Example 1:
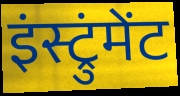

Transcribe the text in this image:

इंस्ट्रुंमेंट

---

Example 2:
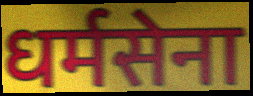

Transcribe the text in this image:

धर्मसेना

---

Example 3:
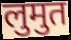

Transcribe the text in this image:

लुमुत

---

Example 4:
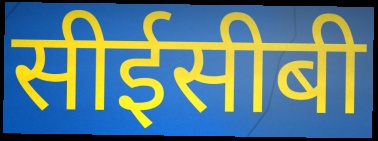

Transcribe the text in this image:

सीईसीबी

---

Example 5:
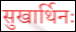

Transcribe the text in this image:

सुखार्थिनः